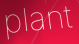
plant